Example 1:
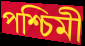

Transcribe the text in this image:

পশ্চিমী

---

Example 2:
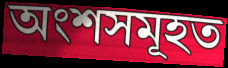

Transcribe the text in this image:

অংশসমূহত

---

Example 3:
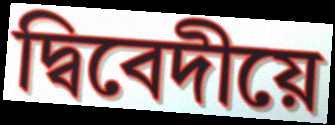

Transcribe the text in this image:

দ্বিবেদীয়ে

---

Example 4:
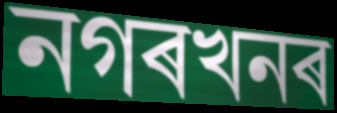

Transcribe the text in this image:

নগৰখনৰ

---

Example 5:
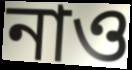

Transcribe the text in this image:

নাও